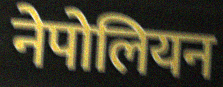
नेपोलियन